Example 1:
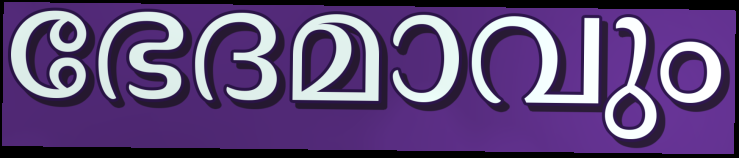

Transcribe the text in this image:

ഭേദമാവും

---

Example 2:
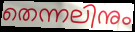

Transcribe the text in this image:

തെന്നലിനും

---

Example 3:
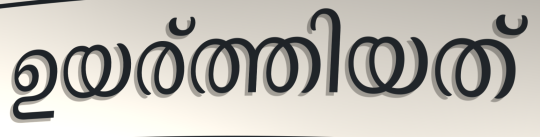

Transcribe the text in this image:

ഉയര്ത്തിയത്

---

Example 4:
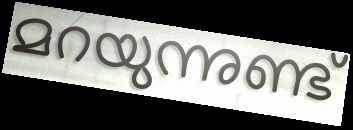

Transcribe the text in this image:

മറയുന്നുണ്ട്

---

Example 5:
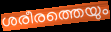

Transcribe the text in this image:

ശരീരത്തെയും